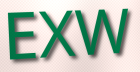
EXW